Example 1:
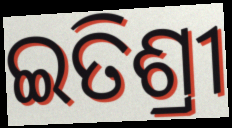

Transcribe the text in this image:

ଇତିଶ୍ରୀ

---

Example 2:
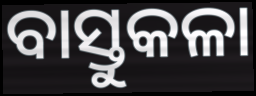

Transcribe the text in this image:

ବାସ୍ତୁକଳା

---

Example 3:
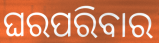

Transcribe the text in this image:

ଘରପରିବାର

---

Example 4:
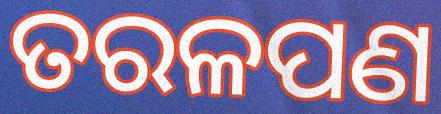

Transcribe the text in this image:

ତରଳପଣ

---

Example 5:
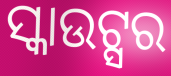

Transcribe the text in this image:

ସ୍କାଉଟ୍ସର